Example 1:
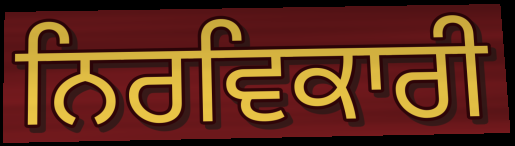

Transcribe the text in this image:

ਨਿਰਵਿਕਾਰੀ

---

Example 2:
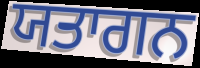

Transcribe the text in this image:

ਯਤਾਗਨ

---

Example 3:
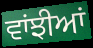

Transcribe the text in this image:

ਵਾਂਝੀਆਂ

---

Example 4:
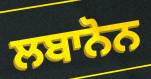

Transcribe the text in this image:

ਲਬਾਨੋਨ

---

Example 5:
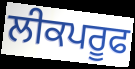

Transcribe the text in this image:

ਲੀਕਪਰੂਫ